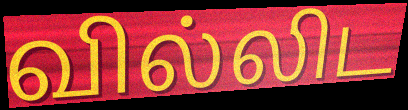
வில்லிட